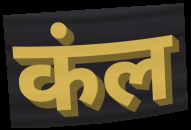
कंल